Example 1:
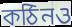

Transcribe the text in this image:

কঠিনও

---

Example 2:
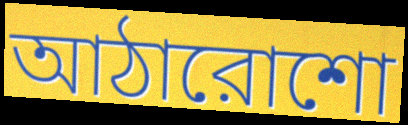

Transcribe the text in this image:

আঠারোশো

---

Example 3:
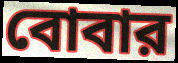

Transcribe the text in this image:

বোবার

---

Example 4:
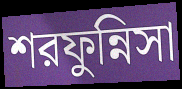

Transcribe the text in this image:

শরফুন্নিসা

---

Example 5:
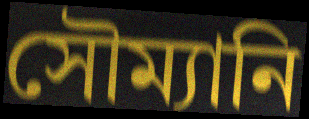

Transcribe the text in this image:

সৌম্যানি